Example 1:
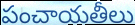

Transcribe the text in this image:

పంచాయతీలు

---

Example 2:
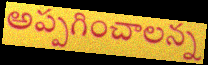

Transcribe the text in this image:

అప్పగించాలన్న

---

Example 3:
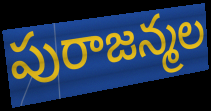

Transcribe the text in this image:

పురాజన్మల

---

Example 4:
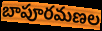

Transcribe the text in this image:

బాపూరమణల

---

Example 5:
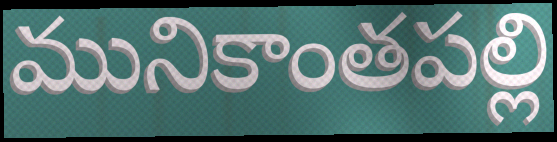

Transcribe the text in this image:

మునికాంతపల్లి